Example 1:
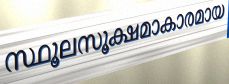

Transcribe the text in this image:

സ്ഥൂലസൂക്ഷമാകാരമായ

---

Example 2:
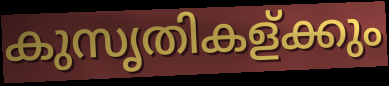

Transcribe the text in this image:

കുസൃതികള്ക്കും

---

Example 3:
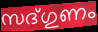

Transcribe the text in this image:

സദ്ഗുണം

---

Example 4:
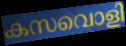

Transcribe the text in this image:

കസവൊളി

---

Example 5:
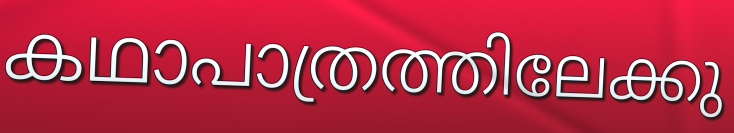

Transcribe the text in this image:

കഥാപാത്രത്തിലേക്കു